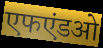
एफएंडओ